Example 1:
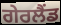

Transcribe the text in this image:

ਗੇਰਲੈਂਡ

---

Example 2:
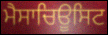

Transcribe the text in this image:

ਮੈਸਾਚਿਊਸਿਟ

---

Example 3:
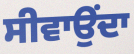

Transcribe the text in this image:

ਸੀਵਾਉਂਦਾ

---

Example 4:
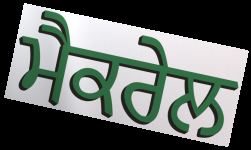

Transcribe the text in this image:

ਮੈਕਰੇਲ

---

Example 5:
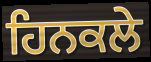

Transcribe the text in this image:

ਹਿਨਕਲੇ